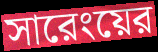
সারেংয়ের